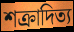
শক্রাদিত্য